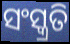
ସଂସ୍କ୍ରତି